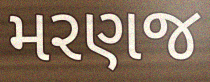
મરણજ